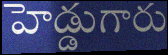
హెడ్డుగారు